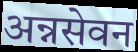
अन्नसेवन